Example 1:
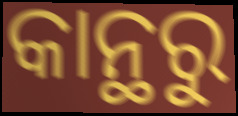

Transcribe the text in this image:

କାନ୍ଥରୁ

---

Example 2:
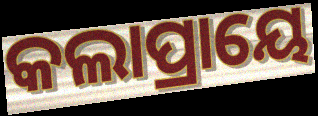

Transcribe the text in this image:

କଲାପ୍ରାୟେ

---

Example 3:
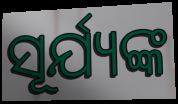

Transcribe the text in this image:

ସୂର୍ଯ୍ୟଙ୍କ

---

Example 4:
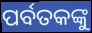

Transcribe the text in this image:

ପର୍ବତକଙ୍କୁ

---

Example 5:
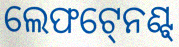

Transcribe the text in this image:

ଲେଫଟ୍‍ନେଣ୍ଟ୍